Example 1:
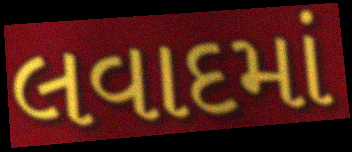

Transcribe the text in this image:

લવાદમાં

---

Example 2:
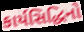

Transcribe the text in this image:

કાર્યસિદ્ધિનો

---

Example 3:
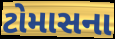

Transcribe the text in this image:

ટોમાસના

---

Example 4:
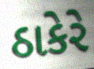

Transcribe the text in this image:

ઠાકેરે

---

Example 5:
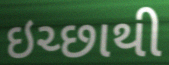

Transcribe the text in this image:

ઇચ્છાથી